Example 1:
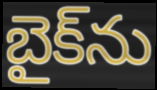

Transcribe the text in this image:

బైక్‌ను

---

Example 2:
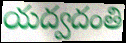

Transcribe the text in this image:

యద్వదంతి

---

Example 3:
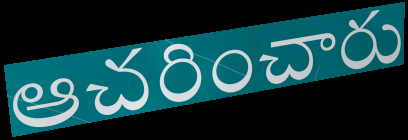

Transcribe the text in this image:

ఆచరించారు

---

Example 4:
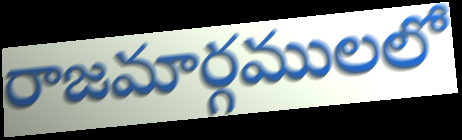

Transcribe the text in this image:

రాజమార్గములలో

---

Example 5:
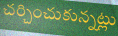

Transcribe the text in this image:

చర్చించుకున్నట్లు